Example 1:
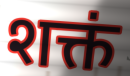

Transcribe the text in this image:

शक्तं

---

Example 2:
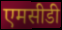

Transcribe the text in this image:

एमसीडी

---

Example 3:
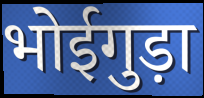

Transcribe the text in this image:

भोईगुड़ा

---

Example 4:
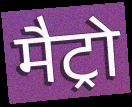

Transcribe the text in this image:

मैट्रो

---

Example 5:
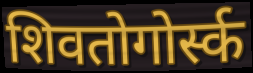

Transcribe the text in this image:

शिवतोगोर्स्क